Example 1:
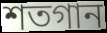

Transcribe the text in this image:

শতগান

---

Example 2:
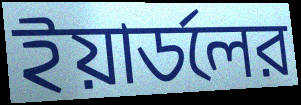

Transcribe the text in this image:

ইয়ার্ডলের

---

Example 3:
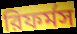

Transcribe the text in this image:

রিফর্মস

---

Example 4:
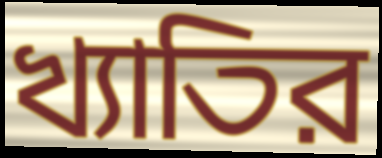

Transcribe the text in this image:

খ্যাতির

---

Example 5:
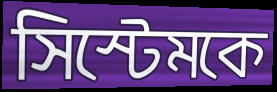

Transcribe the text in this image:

সিস্টেমকে